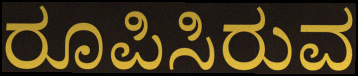
ರೂಪಿಸಿರುವ